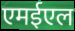
एमईएल